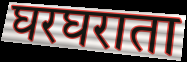
घरघराता